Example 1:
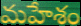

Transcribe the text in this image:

మహేశం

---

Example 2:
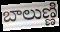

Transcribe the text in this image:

బాలుణ్ణి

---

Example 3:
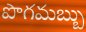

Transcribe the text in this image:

పొగమబ్బు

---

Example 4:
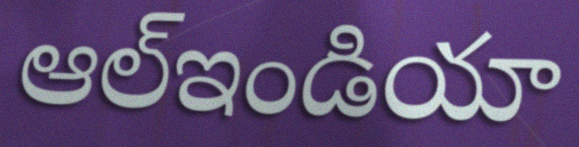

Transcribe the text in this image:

ఆల్ఇండియా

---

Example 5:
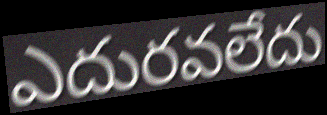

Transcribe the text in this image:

ఎదురవలేదు